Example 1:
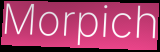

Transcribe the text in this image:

Morpich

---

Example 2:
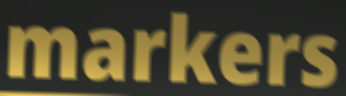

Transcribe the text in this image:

markers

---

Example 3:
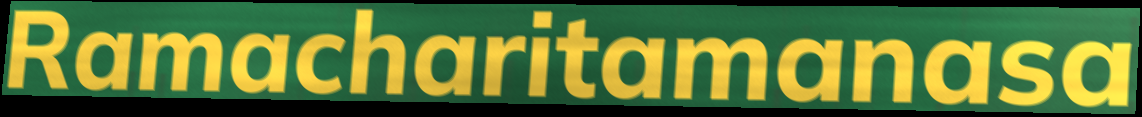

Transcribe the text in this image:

Ramacharitamanasa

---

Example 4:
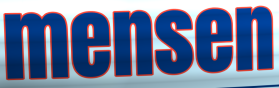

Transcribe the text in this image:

mensen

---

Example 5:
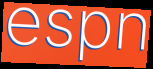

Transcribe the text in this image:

espn